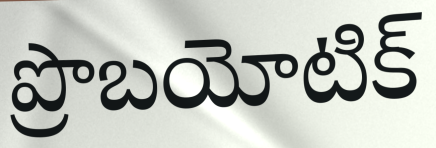
ప్రొబయోటిక్